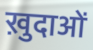
ख़ुदाओं